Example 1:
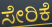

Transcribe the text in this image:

ಸೇರಿಕೆ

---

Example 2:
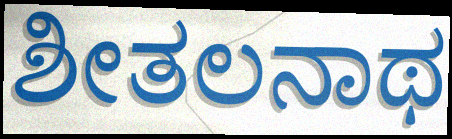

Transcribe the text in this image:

ಶೀತಲನಾಥ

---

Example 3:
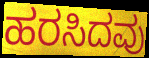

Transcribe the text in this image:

ಹರಸಿದವು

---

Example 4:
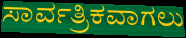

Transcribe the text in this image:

ಸಾರ್ವತ್ರಿಕವಾಗಲು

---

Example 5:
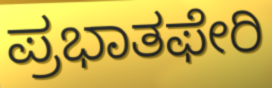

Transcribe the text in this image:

ಪ್ರಭಾತಫೇರಿ